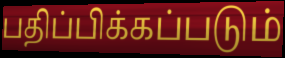
பதிப்பிக்கப்படும்